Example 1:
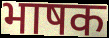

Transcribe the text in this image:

भाषक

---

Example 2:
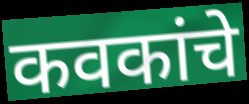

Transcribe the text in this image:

कवकांचे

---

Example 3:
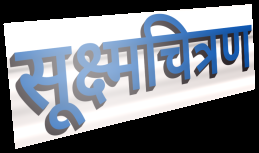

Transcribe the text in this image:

सूक्ष्मचित्रण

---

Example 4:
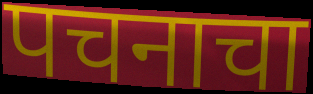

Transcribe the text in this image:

पचनाचा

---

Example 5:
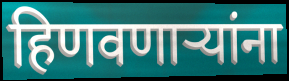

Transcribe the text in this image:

हिणवणाऱ्यांना